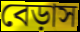
বেড়াস